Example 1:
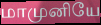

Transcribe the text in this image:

மாமுனியே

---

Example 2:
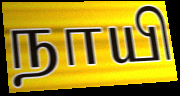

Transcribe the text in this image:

நாயி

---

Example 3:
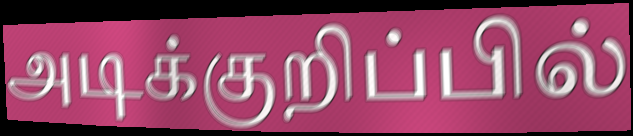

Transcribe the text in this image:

அடிக்குறிப்பில்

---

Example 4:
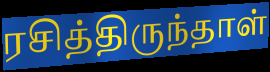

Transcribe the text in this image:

ரசித்திருந்தாள்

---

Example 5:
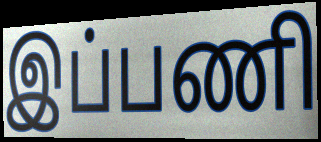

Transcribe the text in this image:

இப்பணி